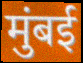
मुंबई